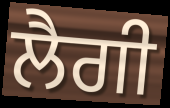
ਲੈਗੀ